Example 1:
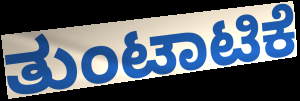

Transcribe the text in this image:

ತುಂಟಾಟಿಕೆ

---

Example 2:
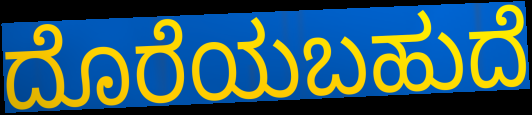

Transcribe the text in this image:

ದೊರೆಯಬಹುದೆ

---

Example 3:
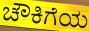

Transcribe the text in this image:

ಚೌಕಿಗೆಯ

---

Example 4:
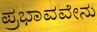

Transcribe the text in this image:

ಪ್ರಭಾವವೇನು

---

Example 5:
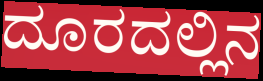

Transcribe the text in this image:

ದೂರದಲ್ಲಿನ